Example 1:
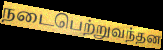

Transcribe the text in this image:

நடைபெற்றுவந்தன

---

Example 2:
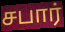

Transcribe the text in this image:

சபார்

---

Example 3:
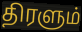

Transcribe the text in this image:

திரளும்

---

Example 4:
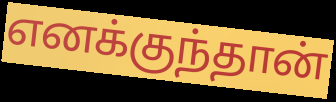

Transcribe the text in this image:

எனக்குந்தான்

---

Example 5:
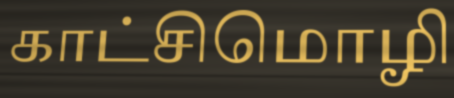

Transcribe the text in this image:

காட்சிமொழி